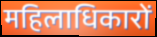
महिलाधिकारों